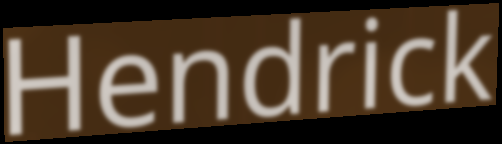
Hendrick